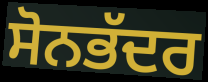
ਸੋਨਭੱਦਰ